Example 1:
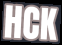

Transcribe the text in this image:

HCK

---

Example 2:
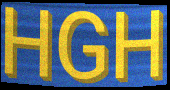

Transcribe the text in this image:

HGH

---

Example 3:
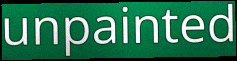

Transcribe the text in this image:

unpainted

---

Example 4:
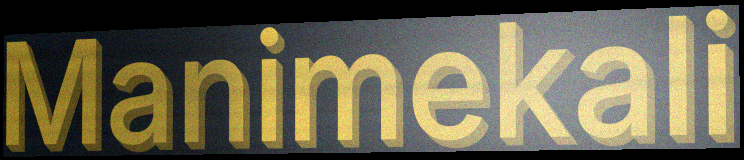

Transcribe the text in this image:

Manimekali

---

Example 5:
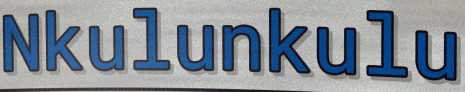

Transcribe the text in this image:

Nkulunkulu